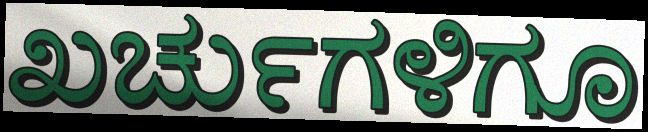
ಖರ್ಚುಗಳಿಗೂ